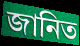
জানিত